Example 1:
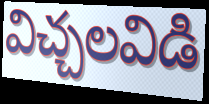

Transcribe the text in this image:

విచ్చలవిడి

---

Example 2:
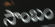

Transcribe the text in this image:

సాంబం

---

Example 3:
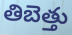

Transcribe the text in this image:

తిబెత్తు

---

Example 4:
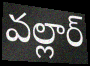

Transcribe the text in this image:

వల్లార్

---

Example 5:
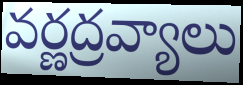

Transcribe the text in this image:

వర్ణద్రవ్యాలు